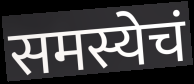
समस्येचं